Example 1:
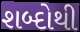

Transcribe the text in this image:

શબ્દોથી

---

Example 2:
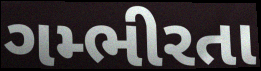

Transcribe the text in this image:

ગમ્ભીરતા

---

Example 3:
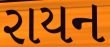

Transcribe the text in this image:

રાયન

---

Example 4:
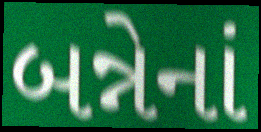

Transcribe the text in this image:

બન્નેનાં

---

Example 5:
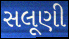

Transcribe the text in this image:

સલૂણી